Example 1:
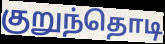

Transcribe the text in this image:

குறுந்தொடி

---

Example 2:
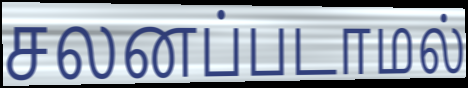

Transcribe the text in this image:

சலனப்படாமல்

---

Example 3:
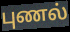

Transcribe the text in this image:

புணல்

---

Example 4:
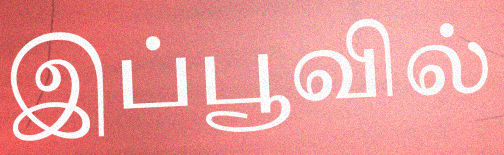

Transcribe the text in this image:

இப்பூவில்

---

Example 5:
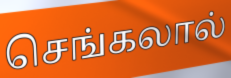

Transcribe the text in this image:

செங்கலால்